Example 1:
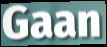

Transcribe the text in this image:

Gaan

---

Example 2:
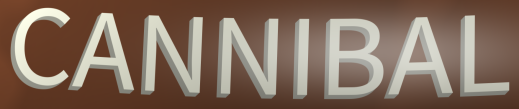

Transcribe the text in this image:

CANNIBAL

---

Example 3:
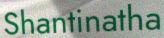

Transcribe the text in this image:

Shantinatha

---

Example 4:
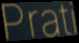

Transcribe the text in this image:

Prati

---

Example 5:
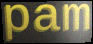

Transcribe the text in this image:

pam